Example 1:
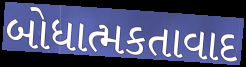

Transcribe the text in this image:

બોધાત્મકતાવાદ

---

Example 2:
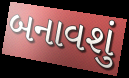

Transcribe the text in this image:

બનાવશું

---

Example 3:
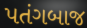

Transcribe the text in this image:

પતંગબાજ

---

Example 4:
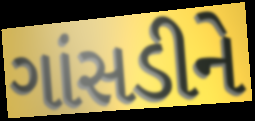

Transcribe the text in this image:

ગાંસડીને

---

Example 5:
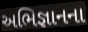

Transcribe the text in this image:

અભિજ્ઞાનના